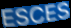
ESCES